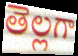
తెల్లగా